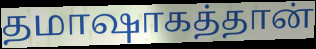
தமாஷாகத்தான்